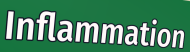
Inflammation